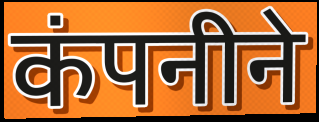
कंपनीने